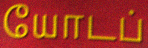
யோடப்